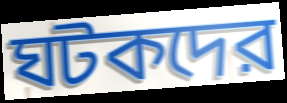
ঘটকদের